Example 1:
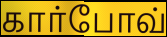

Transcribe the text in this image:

கார்போவ்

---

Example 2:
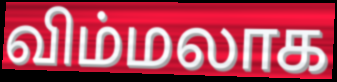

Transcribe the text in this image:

விம்மலாக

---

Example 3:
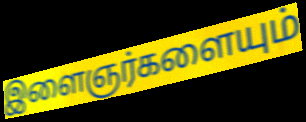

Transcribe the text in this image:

இளைஞர்களையும்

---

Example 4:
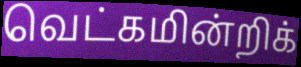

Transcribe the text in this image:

வெட்கமின்றிக்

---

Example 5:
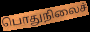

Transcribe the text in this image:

பொதுநிலைச்